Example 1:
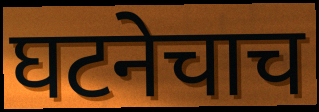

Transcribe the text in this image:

घटनेचाच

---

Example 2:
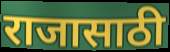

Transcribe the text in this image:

राजासाठी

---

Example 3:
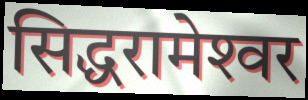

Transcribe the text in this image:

सिद्धरामेश्‍वर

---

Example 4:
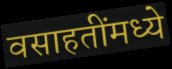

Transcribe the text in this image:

वसाहतींमध्ये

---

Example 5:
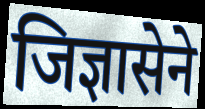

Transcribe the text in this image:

जिज्ञासेने